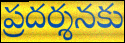
ప్రదర్శనకు